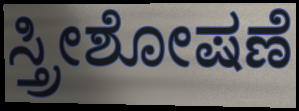
ಸ್ತ್ರೀಶೋಷಣೆ